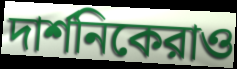
দার্শনিকেরাও